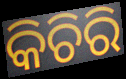
କିଚିରି